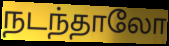
நடந்தாலோ